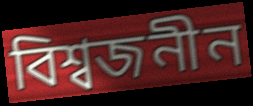
বিশ্বজনীন